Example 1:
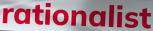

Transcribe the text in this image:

rationalist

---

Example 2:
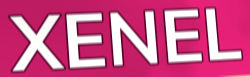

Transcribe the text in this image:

XENEL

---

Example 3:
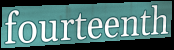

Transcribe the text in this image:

fourteenth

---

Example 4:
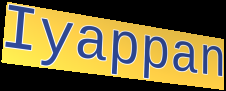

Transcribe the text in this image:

Iyappan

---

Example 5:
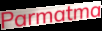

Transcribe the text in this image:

Parmatma